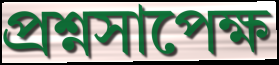
প্রশ্নসাপেক্ষ